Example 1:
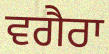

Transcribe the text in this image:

ਵਗੈਰਾ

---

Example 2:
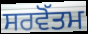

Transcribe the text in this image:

ਸਰਵੋੱਤਮ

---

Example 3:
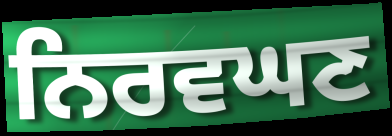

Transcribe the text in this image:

ਨਿਰਵਘਣ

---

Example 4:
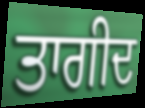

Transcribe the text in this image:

ਤਾਗੀਦ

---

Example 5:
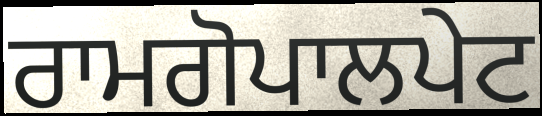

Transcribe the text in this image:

ਰਾਮਗੋਪਾਲਪੇਟ